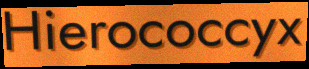
Hierococcyx